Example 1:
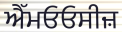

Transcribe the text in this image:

ਐੱਮਓਓਸੀਜ਼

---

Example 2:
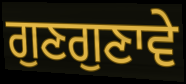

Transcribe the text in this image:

ਗੁਣਗੁਣਾਵੇ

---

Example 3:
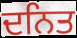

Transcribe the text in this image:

ਦਨਿਤ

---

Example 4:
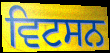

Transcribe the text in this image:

ਵਿਟਸਨ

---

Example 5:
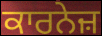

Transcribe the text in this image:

ਕਾਰਨੇਜ਼